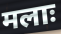
मलाः